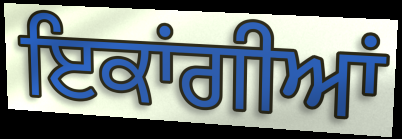
ਇਕਾਂਗੀਆਂ